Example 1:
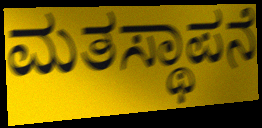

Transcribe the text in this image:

ಮತಸ್ಥಾಪನೆ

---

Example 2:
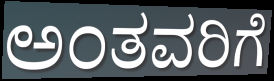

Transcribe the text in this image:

ಅಂತವರಿಗೆ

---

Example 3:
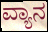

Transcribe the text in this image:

ವ್ಯಾನ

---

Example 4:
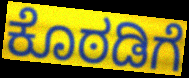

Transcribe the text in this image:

ಕೊಠಡಿಗೆ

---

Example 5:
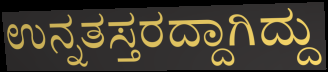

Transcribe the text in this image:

ಉನ್ನತಸ್ತರದ್ದಾಗಿದ್ದು